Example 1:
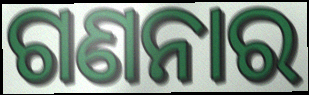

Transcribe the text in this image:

ଗଣନାର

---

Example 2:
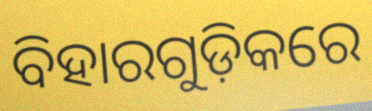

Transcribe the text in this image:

ବିହାରଗୁଡ଼ିକରେ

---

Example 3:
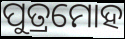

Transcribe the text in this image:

ପୁତ୍ରମୋହ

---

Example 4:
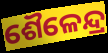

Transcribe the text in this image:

ଶୈଳେନ୍ଦ୍ର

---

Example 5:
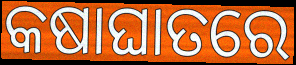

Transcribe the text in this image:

କଷାଘାତରେ